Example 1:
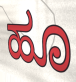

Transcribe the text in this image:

ಹೂ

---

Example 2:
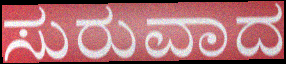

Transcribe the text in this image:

ಸುರುವಾದ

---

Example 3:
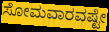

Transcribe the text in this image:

ಸೋಮವಾರವಷ್ಟೇ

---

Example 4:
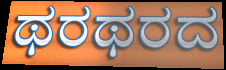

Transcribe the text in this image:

ಥರಥರದ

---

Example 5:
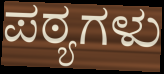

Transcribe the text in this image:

ಪಠ್ಯಗಳು